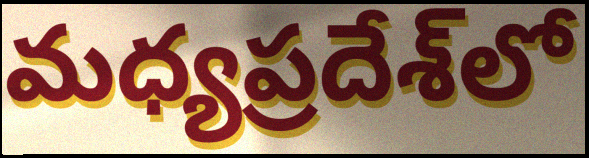
మధ్యప్రదేశ్‌లో